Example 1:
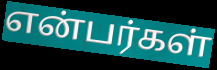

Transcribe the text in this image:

என்பர்கள்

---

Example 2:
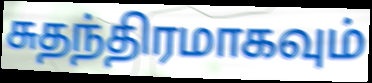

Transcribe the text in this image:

சுதந்திரமாகவும்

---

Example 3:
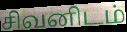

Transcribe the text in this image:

சிவனிடம்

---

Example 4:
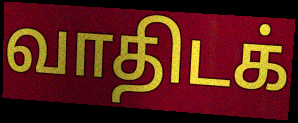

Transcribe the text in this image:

வாதிடக்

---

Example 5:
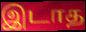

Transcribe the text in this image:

இடாத